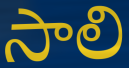
సాలి